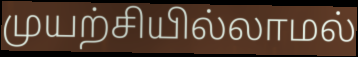
முயற்சியில்லாமல்